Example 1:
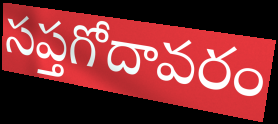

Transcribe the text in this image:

సప్తగోదావరం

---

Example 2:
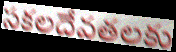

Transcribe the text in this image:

సకలదేవతలకు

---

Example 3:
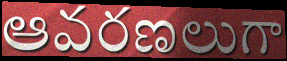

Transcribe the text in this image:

ఆవరణలుగా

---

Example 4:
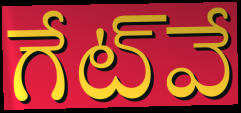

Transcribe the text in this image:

గేట్‌వే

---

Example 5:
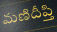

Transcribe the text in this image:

మణిదీప్తి